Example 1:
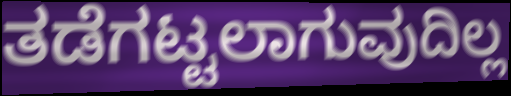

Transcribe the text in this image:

ತಡೆಗಟ್ಟಲಾಗುವುದಿಲ್ಲ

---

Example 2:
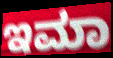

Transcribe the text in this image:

ಇಮಾ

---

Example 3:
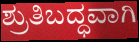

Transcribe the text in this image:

ಶ್ರುತಿಬದ್ಧವಾಗಿ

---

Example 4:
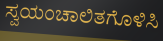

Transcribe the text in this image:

ಸ್ವಯಂಚಾಲಿತಗೊಳಿಸಿ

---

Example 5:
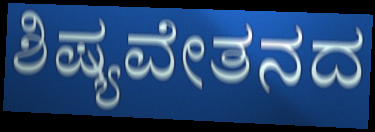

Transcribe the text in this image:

ಶಿಷ್ಯವೇತನದ